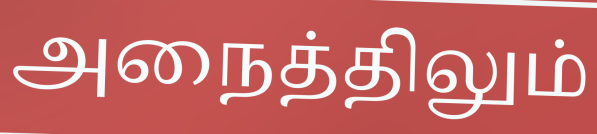
அநைத்திலும்